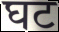
घट